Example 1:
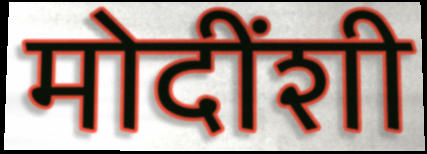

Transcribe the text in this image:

मोदींशी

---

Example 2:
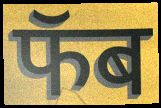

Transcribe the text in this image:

फॅब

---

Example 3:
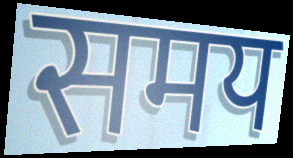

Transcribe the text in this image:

समय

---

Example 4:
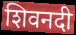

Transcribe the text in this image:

शिवनदी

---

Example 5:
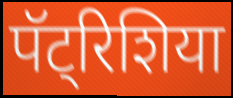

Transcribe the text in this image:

पॅट्रिशिया